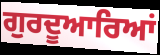
ਗੁਰਦੂਆਰਿਆਂ